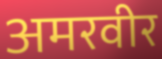
अमरवीर